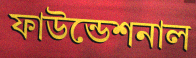
ফাউন্ডেশনাল